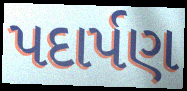
પદાર્પણ